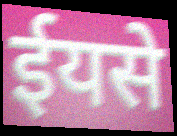
ईयसे